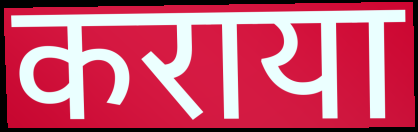
कराया